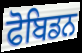
ਫੋਬਿਡਨ